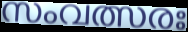
സംവത്സരഃ